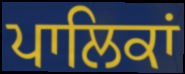
ਪਾਲਿਕਾਂ